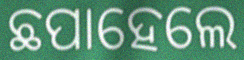
ଛପାହେଲେ